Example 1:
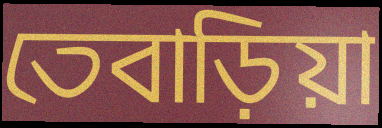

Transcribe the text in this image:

তেবাড়িয়া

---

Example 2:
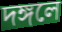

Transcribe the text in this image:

দঙ্গলে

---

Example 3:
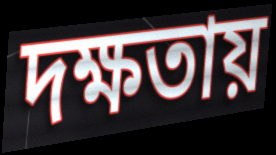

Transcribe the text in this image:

দক্ষতায়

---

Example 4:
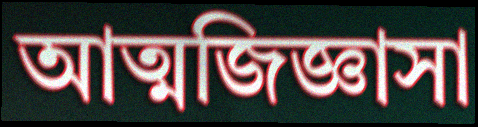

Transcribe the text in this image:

আত্মজিজ্ঞাসা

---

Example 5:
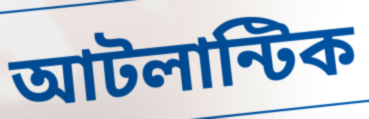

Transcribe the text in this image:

আটলান্টিক